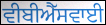
ਵੀਬੀਐੱਸਵਾਈ